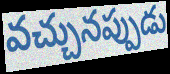
వచ్చునప్పుడు